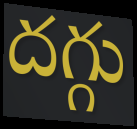
దగ్గు